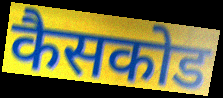
कैसकोड